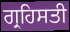
ਗ੍ਰਹਿਸਤੀ